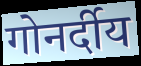
गोनर्दीय